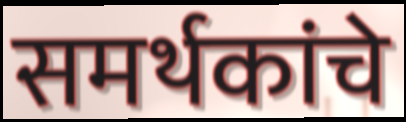
समर्थकांचे